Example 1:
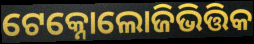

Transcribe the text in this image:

ଟେକ୍ନୋଲୋଜିଭିତ୍ତିକ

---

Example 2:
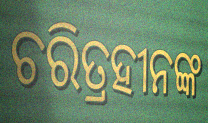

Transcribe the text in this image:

ଚରିତ୍ରହୀନଙ୍କ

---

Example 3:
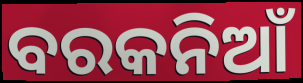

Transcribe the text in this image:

ବରକନିଆଁ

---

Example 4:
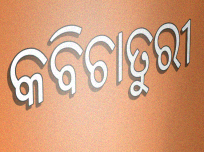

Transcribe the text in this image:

କବିଚାତୁରୀ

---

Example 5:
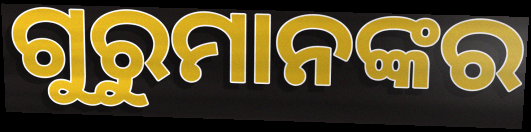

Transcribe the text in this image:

ଗୁରୁମାନଙ୍କର